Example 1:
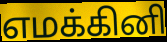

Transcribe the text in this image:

எமக்கினி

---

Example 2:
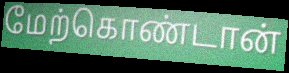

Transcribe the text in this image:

மேற்கொண்டான்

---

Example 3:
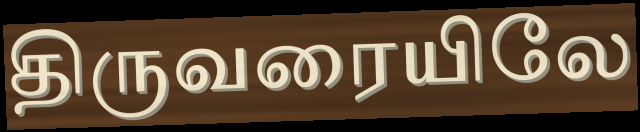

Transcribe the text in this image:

திருவரையிலே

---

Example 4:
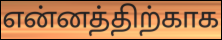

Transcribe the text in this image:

என்னத்திற்காக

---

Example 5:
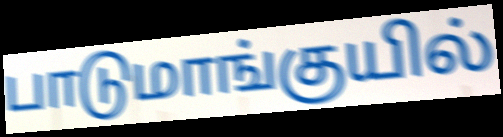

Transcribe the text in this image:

பாடுமாங்குயில்